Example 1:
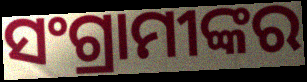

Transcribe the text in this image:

ସଂଗ୍ରାମୀଙ୍କର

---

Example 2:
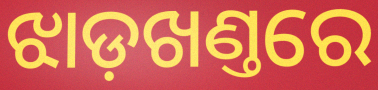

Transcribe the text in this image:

ଝାଡ଼ଖଣ୍ତରେ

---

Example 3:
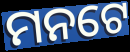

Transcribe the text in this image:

ମନଟେ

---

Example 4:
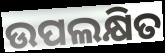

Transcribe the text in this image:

ଉପଲକ୍ଷିତ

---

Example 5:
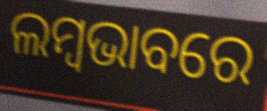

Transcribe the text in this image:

ଲମ୍ବଭାବରେ